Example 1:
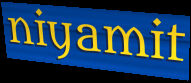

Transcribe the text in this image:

niyamit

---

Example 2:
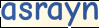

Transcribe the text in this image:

asrayn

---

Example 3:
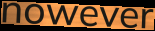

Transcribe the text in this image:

nowever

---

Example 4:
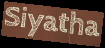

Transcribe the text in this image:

Siyatha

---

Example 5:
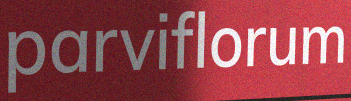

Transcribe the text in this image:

parviflorum